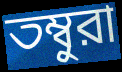
তম্বুরা